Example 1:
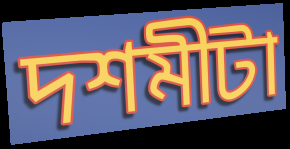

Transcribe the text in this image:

দশমীটা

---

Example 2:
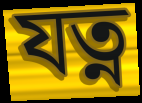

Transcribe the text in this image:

যত্ন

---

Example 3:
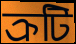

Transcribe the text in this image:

ক্রটি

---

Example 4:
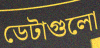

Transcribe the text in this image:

ডেটাগুলো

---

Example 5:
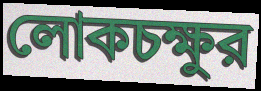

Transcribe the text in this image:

লোকচক্ষুর